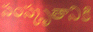
సంస్కృతానికి